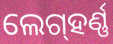
ଲେଗ୍‌ହର୍ଣ୍ଣ